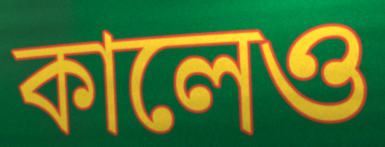
কালেও